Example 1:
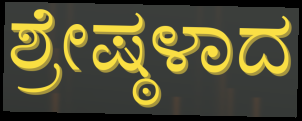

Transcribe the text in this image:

ಶ್ರೇಷ್ಠಳಾದ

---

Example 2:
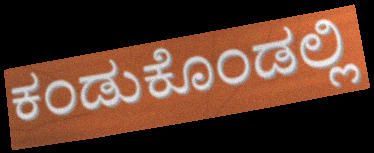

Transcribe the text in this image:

ಕಂಡುಕೊಂಡಲ್ಲಿ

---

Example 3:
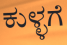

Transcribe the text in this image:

ಕುಳ್ಳಗೆ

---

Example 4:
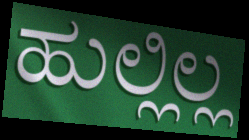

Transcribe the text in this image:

ಹುಲ್ಲಿಲ್ಲ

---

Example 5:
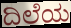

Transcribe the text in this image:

ದಿಲೆಯ